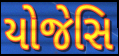
યોજેસિ